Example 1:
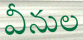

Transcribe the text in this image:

వీనుల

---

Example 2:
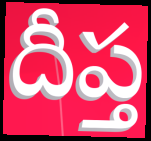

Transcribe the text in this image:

దీప్త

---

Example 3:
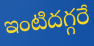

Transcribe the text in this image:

ఇంటిదగ్గరే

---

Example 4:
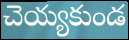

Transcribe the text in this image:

చెయ్యకుండ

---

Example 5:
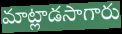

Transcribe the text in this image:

మాట్లాడసాగారు